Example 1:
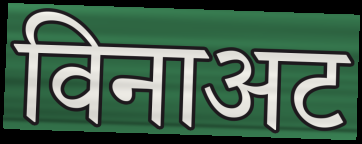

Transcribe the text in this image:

विनाअट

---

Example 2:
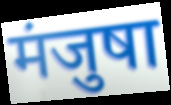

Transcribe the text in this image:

मंजुषा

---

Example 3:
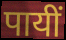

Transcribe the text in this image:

पायीं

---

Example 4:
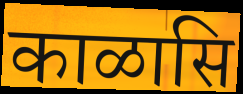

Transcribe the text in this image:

काळासि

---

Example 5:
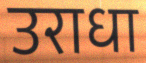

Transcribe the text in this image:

उराधा